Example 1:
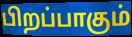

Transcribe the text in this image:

பிறப்பாகும்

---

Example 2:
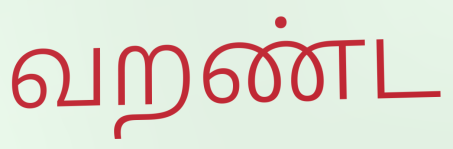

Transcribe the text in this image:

வறண்ட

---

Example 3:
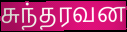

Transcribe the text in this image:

சுந்தரவன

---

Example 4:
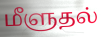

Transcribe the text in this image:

மீளுதல்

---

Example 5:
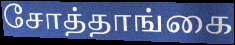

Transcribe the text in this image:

சோத்தாங்கை